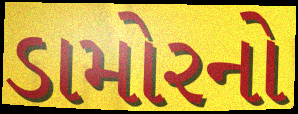
ડામોરનો